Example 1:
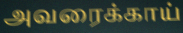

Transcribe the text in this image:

அவரைக்காய்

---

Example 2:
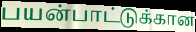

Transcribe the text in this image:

பயன்பாட்டுக்கான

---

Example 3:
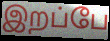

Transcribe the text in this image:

இறப்பே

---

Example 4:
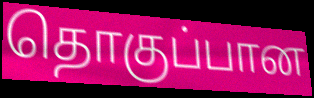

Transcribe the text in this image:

தொகுப்பான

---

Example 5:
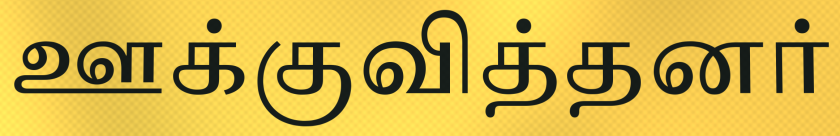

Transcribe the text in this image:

ஊக்குவித்தனர்